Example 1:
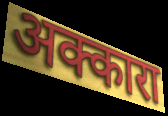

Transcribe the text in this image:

अक्कारा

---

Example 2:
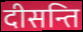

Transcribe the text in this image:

दीसन्ति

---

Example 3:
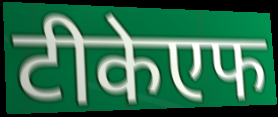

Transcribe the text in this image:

टीकेएफ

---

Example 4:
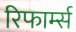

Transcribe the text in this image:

रिफार्म्स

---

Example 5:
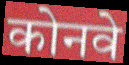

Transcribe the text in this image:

कोनवे